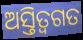
ଅସ୍ତିତ୍ବଗତ